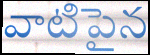
వాటిపైన